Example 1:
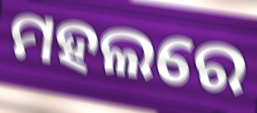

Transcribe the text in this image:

ମହଲରେ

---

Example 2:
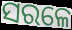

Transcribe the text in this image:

ସରଳେ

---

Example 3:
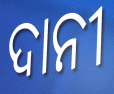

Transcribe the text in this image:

ଦାନୀ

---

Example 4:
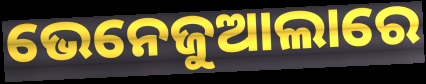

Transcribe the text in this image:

ଭେନେଜୁଆଲାରେ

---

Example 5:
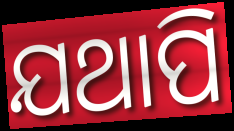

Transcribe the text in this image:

ଯଥାପି